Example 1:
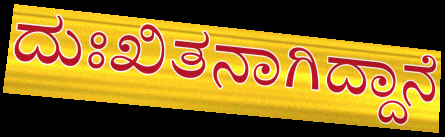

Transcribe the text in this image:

ದುಃಖಿತನಾಗಿದ್ದಾನೆ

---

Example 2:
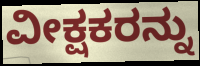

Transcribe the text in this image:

ವೀಕ್ಷಕರನ್ನು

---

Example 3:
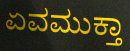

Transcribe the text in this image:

ಏವಮುಕ್ತಾ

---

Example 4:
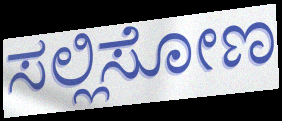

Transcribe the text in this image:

ಸಲ್ಲಿಸೋಣ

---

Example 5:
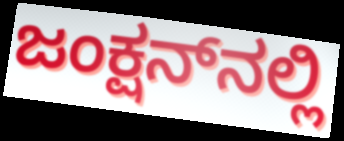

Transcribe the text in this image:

ಜಂಕ್ಷನ್‌ನಲ್ಲಿ